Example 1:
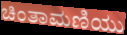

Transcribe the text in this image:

ಚಿಂತಾಮಣಿಯು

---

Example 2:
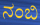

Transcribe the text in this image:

ನಂಬಿ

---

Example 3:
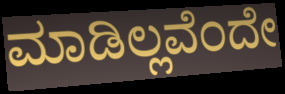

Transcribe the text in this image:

ಮಾಡಿಲ್ಲವೆಂದೇ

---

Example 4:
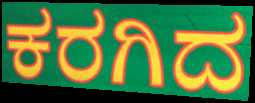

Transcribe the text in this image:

ಕರಗಿದ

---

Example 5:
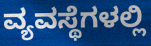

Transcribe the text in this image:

ವ್ಯವಸ್ಥೆಗಳಲ್ಲಿ